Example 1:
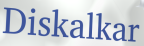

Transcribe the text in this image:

Diskalkar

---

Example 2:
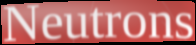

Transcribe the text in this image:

Neutrons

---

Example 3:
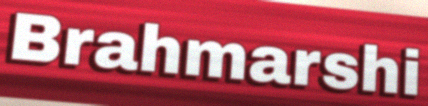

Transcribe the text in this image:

Brahmarshi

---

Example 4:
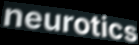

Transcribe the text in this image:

neurotics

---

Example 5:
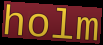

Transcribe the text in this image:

holm